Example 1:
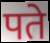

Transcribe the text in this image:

पते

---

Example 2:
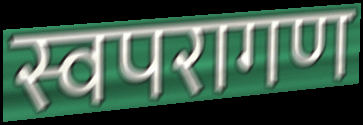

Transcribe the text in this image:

स्वपरागण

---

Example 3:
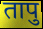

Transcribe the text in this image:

तापु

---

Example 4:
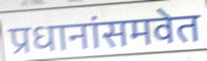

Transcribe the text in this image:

प्रधानांसमवेत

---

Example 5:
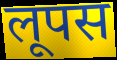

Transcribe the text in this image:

लूपस